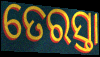
ତେରସ୍ତା